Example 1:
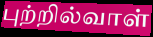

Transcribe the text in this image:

புற்றில்வாள்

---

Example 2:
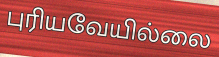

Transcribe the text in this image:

புரியவேயில்லை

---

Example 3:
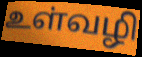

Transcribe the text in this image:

உள்வழி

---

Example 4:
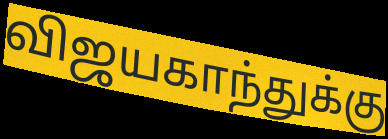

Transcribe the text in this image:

விஜயகாந்துக்கு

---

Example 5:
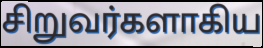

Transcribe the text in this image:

சிறுவர்களாகிய